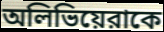
অলিভিয়েরাকে